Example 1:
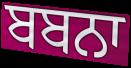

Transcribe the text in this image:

ਬਬਨਾ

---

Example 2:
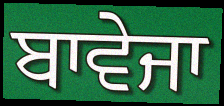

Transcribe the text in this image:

ਬਾਵੇਜਾ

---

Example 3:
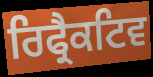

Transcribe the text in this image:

ਰਿਫ੍ਰੈਕਟਿਵ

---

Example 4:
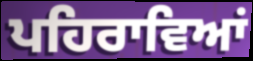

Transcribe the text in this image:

ਪਹਿਰਾਵਿਆਂ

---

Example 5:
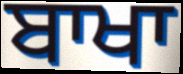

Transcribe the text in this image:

ਬਾਖਾ